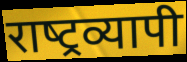
राष्ट्रव्यापी